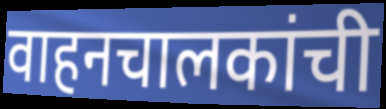
वाहनचालकांची